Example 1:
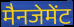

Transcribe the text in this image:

मैनजेमेंट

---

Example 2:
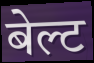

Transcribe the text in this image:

बेल्‍ट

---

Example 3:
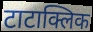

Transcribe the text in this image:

टाटाक्लिक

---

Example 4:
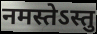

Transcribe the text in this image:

नमस्तेऽस्तु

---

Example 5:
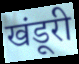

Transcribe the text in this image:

खंडूरी